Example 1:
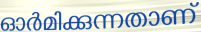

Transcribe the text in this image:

ഓർമിക്കുന്നതാണ്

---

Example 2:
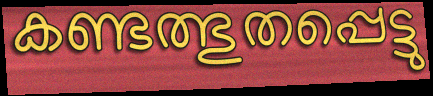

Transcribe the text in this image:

കണ്ടത്ഭുതപ്പെട്ടു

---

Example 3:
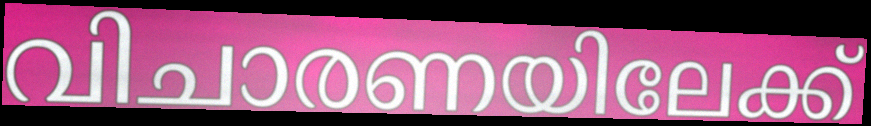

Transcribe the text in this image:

വിചാരണയിലേക്ക്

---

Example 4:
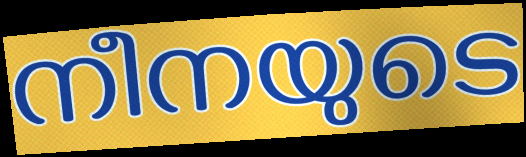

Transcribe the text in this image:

നീനയുടെ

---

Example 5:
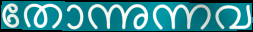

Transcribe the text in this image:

തോന്നുന്നവ